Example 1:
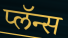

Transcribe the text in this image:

प्लॅन्स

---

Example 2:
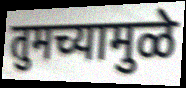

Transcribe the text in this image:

तुमच्यामुळे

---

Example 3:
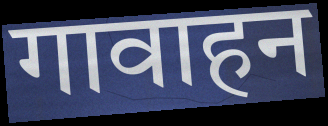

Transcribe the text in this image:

गावाहन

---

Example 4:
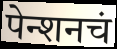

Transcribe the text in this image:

पेन्शनचं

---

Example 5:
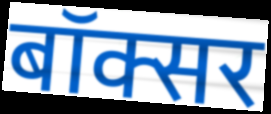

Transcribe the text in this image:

बॉक्सर